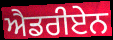
ਐਡਰੀਏਨ